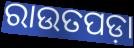
ରାଉତପଡ଼ା